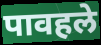
पावहले